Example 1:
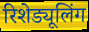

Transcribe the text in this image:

रिशेड्यूलिंग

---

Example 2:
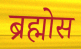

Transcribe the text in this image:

ब्रह्मोस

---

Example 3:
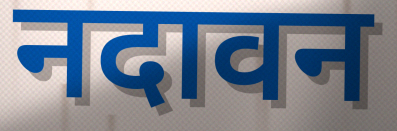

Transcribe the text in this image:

नदावन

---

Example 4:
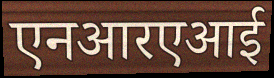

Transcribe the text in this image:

एनआरएआई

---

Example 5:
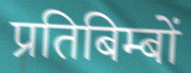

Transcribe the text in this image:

प्रतिबिम्बों